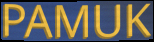
PAMUK